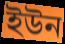
ইউন